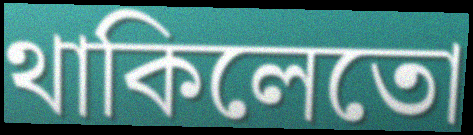
থাকিলেতো